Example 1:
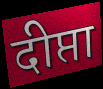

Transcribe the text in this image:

दीप्ता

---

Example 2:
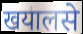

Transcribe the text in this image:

खयालसे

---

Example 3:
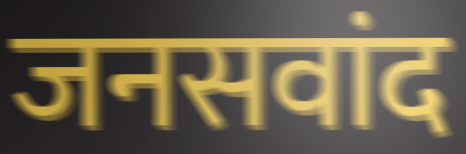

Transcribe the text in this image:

जनसवांद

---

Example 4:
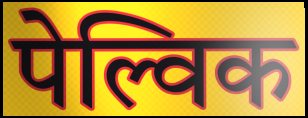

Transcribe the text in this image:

पेल्विक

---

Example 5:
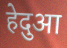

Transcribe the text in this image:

हेदुआ